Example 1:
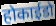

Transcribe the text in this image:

होकाईडो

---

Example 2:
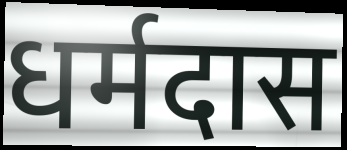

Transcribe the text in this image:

धर्मदास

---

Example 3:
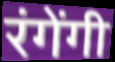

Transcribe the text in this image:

रंगेंगी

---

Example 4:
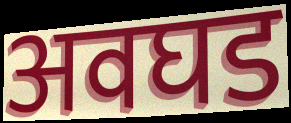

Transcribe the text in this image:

अवघड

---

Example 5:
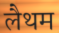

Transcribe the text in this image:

लैथम